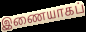
இணையாகப்